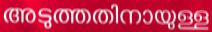
അടുത്തതിനായുള്ള